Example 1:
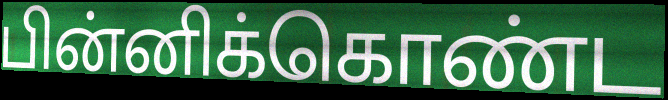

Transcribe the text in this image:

பின்னிக்கொண்ட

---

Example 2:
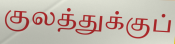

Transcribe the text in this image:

குலத்துக்குப்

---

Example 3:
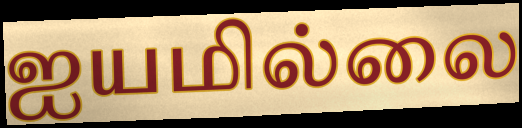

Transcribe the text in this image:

ஐயமில்லை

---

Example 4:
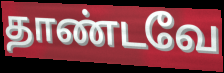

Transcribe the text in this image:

தாண்டவே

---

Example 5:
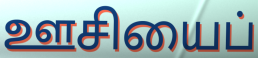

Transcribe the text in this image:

ஊசியைப்